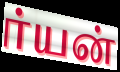
ர்யன்